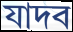
যাদব